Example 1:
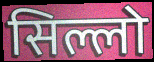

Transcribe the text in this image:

सिल्लो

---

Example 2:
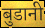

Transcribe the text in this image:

बुडानी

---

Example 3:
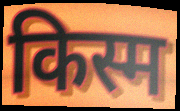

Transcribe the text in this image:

किस्म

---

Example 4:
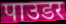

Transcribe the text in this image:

पाउडर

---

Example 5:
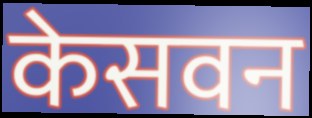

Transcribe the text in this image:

केसवन